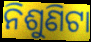
ନିଶୁଣିଟା